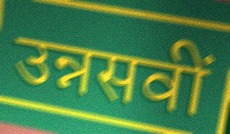
उन्नसवीं